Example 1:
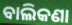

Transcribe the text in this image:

ବାଲିକଣା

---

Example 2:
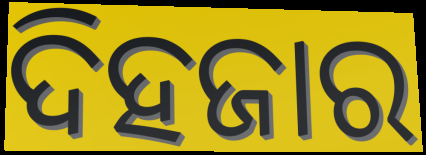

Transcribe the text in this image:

ଦିହଜାର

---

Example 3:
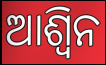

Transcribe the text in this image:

ଆଶ୍ୱିନ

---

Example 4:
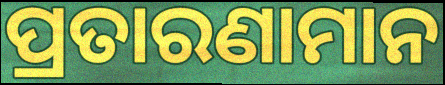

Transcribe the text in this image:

ପ୍ରତାରଣାମାନ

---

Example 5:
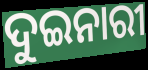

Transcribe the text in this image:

ଦୁଇନାରୀ